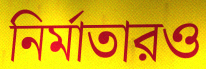
নির্মাতারও